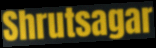
Shrutsagar